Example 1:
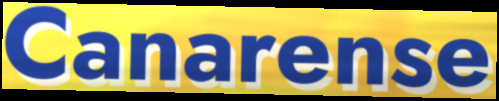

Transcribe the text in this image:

Canarense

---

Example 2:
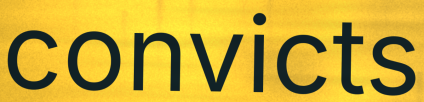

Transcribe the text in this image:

convicts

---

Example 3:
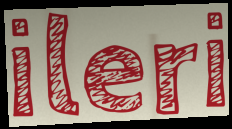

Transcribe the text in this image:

ileri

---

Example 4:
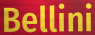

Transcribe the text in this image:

Bellini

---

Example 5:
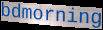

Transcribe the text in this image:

bdmorning